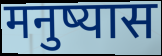
मनुष्यास